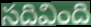
సదివింది